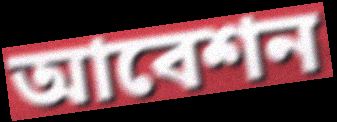
আবেশন